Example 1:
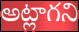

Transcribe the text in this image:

అట్లాగని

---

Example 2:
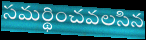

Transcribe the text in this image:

సమర్థించవలసిన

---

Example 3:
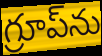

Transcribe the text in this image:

గ్రూప్‌ను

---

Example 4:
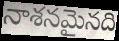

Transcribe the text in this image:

నాశనమైనది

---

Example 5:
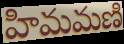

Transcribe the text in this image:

హిమమణి